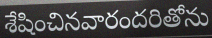
శేషించినవారందరితోను